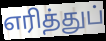
எரித்துப்